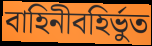
বাহিনীবহির্ভুত